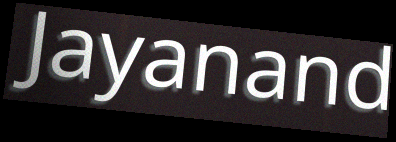
Jayanand